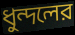
ধুন্দলের